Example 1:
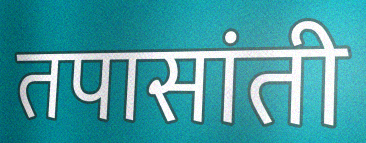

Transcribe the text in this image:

तपासांती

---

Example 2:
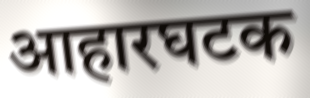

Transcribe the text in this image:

आहारघटक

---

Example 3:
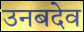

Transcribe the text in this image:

उनबदेव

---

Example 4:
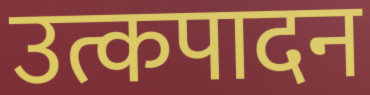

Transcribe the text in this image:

उत्कपादन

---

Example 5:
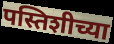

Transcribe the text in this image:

पस्तिशीच्या